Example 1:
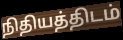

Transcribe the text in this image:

நிதியத்திடம்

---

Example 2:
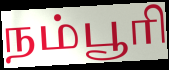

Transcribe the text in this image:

நம்பூரி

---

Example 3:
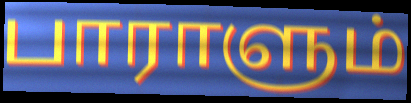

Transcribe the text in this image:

பாராளும்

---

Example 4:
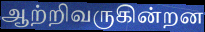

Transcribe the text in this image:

ஆற்றிவருகின்றன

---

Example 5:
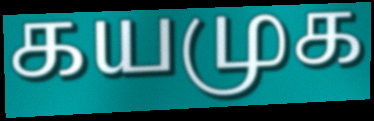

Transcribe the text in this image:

கயமுக